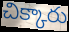
చిక్కారు